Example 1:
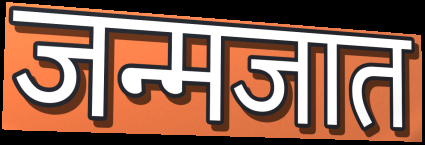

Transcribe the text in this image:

जन्मजात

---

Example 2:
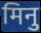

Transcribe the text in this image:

मिनु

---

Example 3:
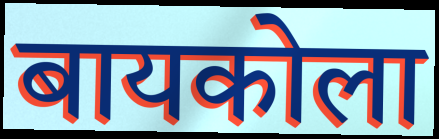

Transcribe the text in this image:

बायकोला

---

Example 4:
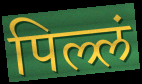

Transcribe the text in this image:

पिल्लं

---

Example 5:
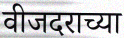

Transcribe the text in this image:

वीजदराच्या